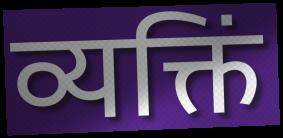
व्यक्तिं